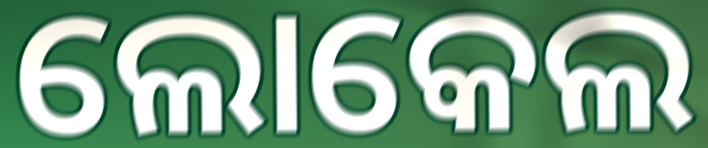
ଲୋକେଲ